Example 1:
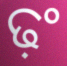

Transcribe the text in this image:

ଢ଼ଂ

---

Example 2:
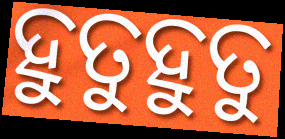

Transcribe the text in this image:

ହୁତୁହୁତୁ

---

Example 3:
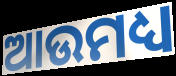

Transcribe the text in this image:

ଆଉମଧ୍ୟ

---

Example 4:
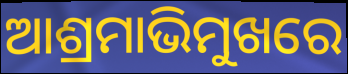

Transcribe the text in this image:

ଆଶ୍ରମାଭିମୁଖରେ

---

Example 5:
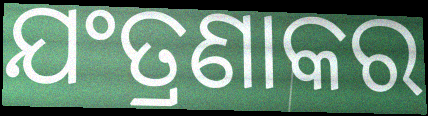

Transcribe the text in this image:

ଯଂତ୍ରଣାକର